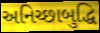
અનિચ્છાબુદ્ધિ